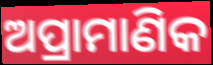
ଅପ୍ରାମାଣିକ